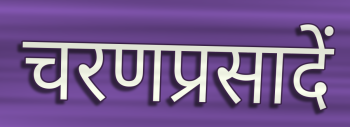
चरणप्रसादें